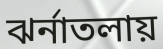
ঝর্নাতলায়